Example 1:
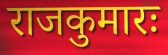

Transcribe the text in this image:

राजकुमारः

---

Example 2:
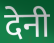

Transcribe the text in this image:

देनी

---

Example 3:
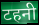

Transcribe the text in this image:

टहनी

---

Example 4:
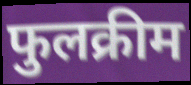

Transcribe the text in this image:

फुलक्रीम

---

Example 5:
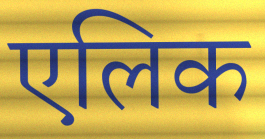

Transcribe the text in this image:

एलिक